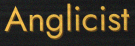
Anglicist